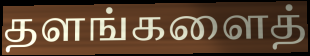
தளங்களைத்